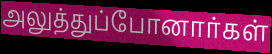
அலுத்துப்போனார்கள்